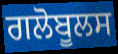
ਗਲੋਬੂਲਸ